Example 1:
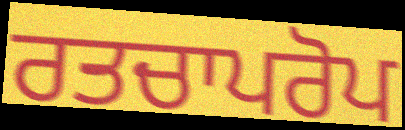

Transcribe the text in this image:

ਰਤਚਾਪਰੋਪ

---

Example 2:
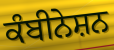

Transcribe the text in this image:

ਕੰਬੀਨੇਸ਼ਨ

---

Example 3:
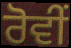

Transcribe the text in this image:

ਰੋਵੀਂ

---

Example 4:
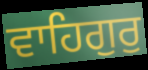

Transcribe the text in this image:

ਵਾਹਿਗੁਰੁ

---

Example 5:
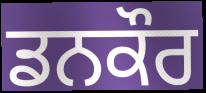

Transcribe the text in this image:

ਡਨਕੌਰ